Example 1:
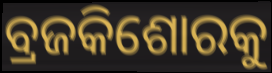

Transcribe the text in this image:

ବ୍ରଜକିଶୋରକୁ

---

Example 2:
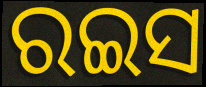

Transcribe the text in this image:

ରଇସ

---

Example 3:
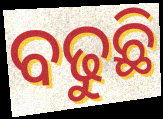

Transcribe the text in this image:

ବଢୁଛି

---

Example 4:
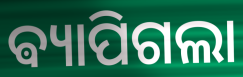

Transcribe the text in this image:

ଵ୍ୟାପିଗଲା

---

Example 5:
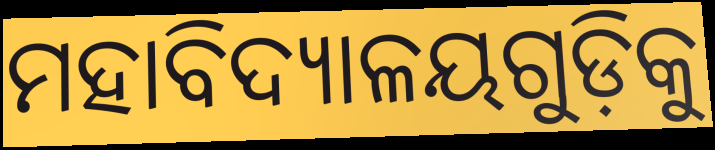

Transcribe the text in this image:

ମହାବିଦ୍ୟାଳୟଗୁଡ଼ିକୁ